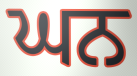
ਘਨ